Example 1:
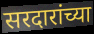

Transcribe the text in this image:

सरदारांच्या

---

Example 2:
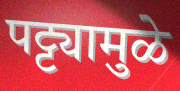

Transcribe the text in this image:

पट्ट्यामुळे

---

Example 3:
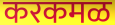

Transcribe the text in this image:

करकमळ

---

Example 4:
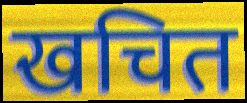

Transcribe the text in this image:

खचित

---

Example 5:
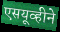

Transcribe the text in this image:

एसयूव्हीने